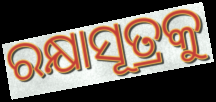
ରକ୍ଷାସୂତ୍ରକୁ